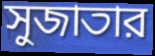
সুজাতার